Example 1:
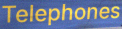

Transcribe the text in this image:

Telephones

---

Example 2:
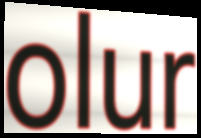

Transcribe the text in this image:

olur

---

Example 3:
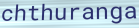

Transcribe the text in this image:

chthuranga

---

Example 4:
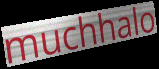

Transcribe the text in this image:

muchhalo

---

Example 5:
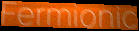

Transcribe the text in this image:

Fermionic